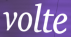
volte